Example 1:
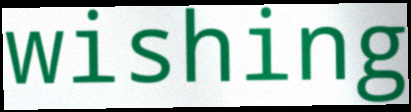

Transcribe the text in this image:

wishing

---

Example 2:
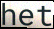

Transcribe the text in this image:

het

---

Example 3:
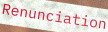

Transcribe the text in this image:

Renunciation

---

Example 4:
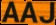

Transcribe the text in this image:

AAJ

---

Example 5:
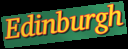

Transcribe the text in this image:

Edinburgh